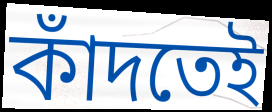
কাঁদতেই